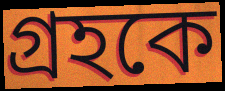
গ্রহকে